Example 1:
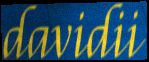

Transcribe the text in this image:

davidii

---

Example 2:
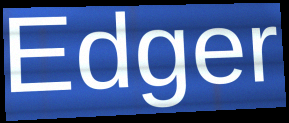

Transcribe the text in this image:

Edger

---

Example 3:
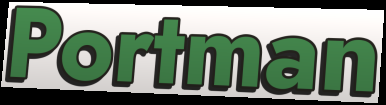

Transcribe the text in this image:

Portman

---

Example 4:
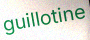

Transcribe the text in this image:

guillotine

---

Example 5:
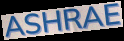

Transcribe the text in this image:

ASHRAE